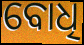
ବୋଧି